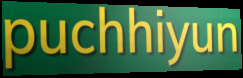
puchhiyun